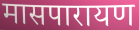
मासपारायण